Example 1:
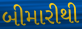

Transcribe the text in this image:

બીમારીથી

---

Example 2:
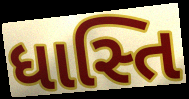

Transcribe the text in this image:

ધાસ્તિ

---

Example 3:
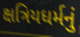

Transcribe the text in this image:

ક્ષત્રિયધર્મનું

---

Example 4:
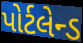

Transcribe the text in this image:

પોર્ટલેન્ડ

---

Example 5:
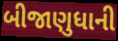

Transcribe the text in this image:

બીજાણુધાની